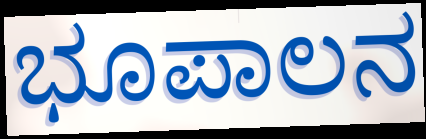
ಭೂಪಾಲನ